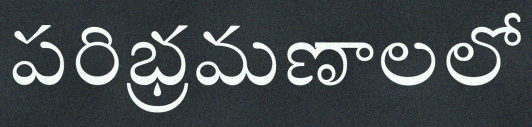
పరిభ్రమణాలలో